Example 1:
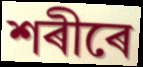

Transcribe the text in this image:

শৰীৰে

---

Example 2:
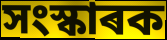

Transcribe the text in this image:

সংস্কাৰক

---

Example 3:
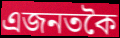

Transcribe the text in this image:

এজনতকৈ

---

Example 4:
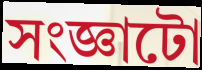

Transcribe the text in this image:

সংজ্ঞাটো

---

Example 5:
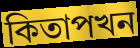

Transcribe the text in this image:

কিতাপখন